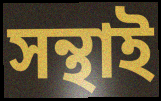
সন্থাই